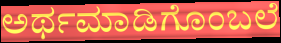
ಅರ್ಥಮಾಡಿಗೊಂಬಲೆ